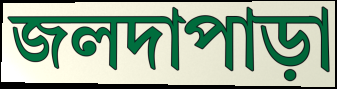
জলদাপাড়া